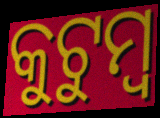
କୁଟୁମ୍ୱ